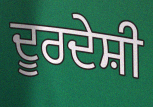
ਦੂਰਦੇਸ਼ੀ